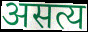
असत्य